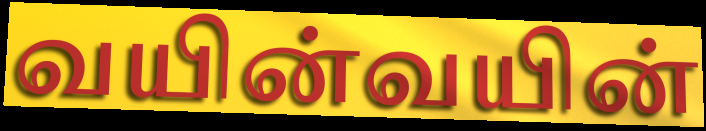
வயின்வயின்